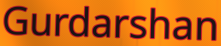
Gurdarshan